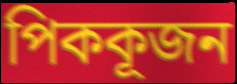
পিককূজন